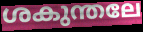
ശകുന്തലേ